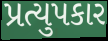
પ્રત્યુપકાર